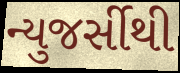
ન્યુજર્સીથી